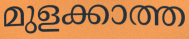
മുളക്കാത്ത